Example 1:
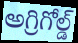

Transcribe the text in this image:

అగ్రిగోల్డ్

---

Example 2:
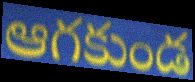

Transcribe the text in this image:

ఆగకుండ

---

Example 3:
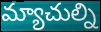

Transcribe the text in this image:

మ్యాచుల్ని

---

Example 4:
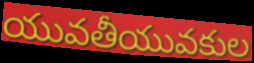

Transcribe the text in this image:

యువతీయువకుల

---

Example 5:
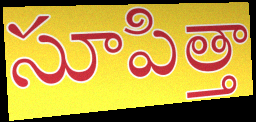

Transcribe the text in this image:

సూపిత్తా